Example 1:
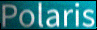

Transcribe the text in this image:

Polaris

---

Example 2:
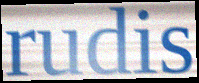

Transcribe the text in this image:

rudis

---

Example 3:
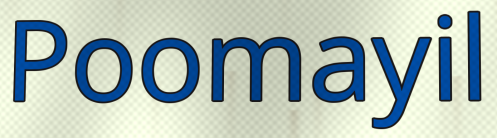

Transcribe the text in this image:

Poomayil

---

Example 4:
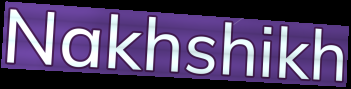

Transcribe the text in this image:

Nakhshikh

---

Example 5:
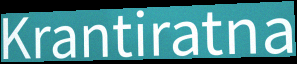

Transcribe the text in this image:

Krantiratna